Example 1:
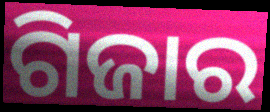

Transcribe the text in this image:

ଗିଜାର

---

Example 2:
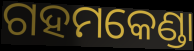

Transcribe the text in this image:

ଗହମକେଣ୍ଡା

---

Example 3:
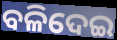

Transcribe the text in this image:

ବଳିଦେଇ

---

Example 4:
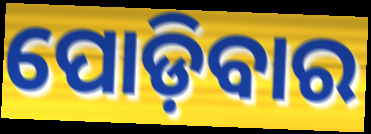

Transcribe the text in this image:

ପୋଡ଼ିବାର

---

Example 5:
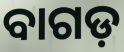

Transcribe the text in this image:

ବାଗଡ଼